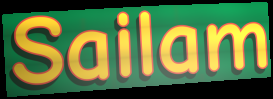
Sailam